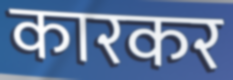
कारकर